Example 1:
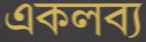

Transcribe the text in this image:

একলব্য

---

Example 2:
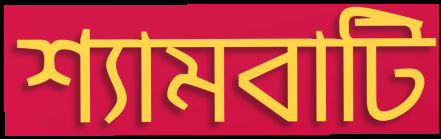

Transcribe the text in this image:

শ্যামবাটি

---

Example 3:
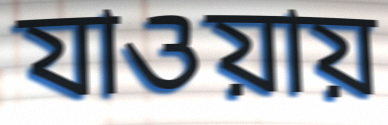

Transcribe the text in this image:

যাওয়ায়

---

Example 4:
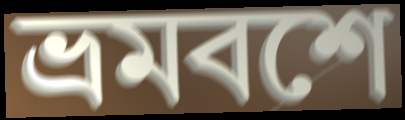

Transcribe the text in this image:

ভ্রমবশে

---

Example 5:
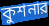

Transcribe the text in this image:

কুশনার